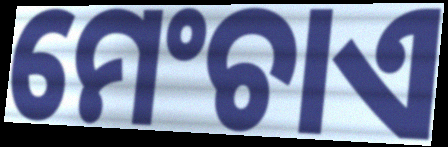
ମେଂଚାଏ